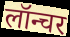
लॉन्चर